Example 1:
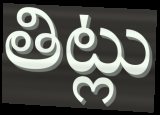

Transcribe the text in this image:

తిట్లు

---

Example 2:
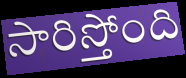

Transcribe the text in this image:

సారిస్తోంది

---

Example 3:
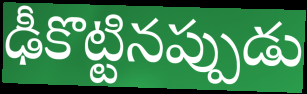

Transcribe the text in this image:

ఢీకొట్టినప్పుడు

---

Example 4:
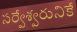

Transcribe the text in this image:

సర్వేశ్వరునికే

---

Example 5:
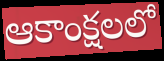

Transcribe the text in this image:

ఆకాంక్షలలో